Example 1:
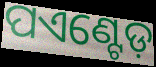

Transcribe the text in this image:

ପଏଣ୍ଟେଡ଼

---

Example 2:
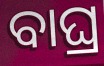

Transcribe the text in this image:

ବାଘ୍ର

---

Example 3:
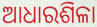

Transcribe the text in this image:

ଆଧାରଶିଳା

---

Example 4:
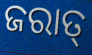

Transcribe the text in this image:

ଜରାତ୍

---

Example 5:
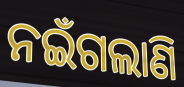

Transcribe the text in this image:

ନଇଁଗଲାଣି